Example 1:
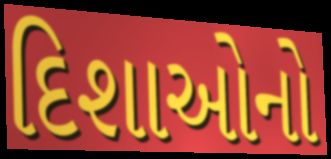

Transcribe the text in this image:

દિશાઓનો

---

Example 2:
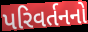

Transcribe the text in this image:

પરિવર્તનનો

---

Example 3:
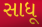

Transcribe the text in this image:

સાધૂ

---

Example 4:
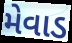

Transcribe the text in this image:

મેવાડ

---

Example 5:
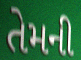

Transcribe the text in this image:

તેમની